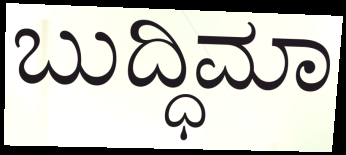
ಬುದ್ಧಿಮಾ